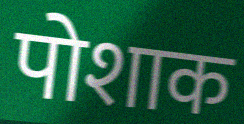
पोशाक